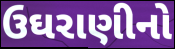
ઉઘરાણીનો